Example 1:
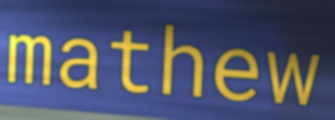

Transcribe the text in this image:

mathew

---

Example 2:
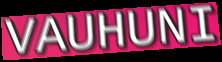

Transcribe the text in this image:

VAUHUNI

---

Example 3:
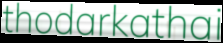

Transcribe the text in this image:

thodarkathai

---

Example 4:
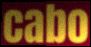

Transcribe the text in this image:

cabo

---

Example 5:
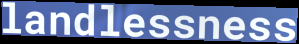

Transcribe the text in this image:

landlessness